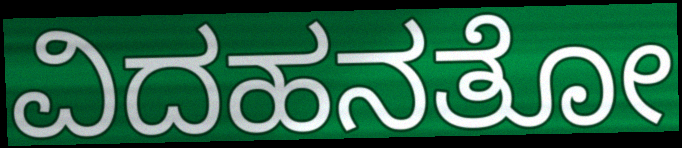
ವಿದಹನತೋ